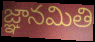
జ్ఞానమితి